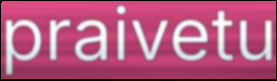
praivetu